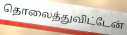
தொலைத்துவிட்டேன்